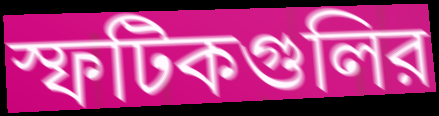
স্ফটিকগুলির